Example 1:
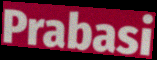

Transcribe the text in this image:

Prabasi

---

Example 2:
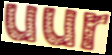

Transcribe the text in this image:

uur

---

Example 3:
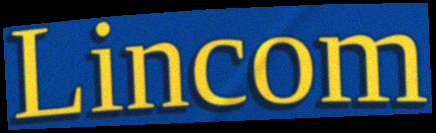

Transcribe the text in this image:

Lincom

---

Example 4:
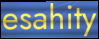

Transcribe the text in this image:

esahity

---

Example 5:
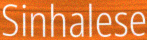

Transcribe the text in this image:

Sinhalese